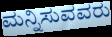
ಮನ್ನಿಸುವವರು